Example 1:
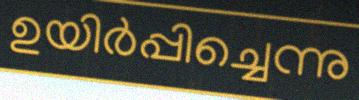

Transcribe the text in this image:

ഉയിർപ്പിച്ചെന്നു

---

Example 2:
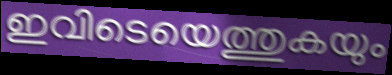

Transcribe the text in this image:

ഇവിടെയെത്തുകയും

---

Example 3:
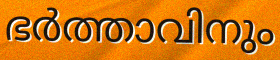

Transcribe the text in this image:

ഭർത്താവിനും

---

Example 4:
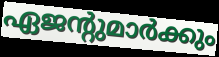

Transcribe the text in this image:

ഏജന്റുമാർക്കും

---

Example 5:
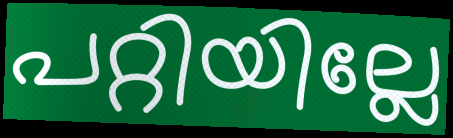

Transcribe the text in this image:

പറ്റിയില്ലേ